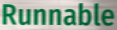
Runnable